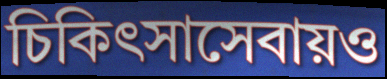
চিকিৎসাসেবায়ও